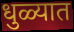
धुळ्यात